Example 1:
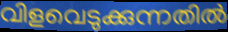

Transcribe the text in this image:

വിളവെടുക്കുന്നതിൽ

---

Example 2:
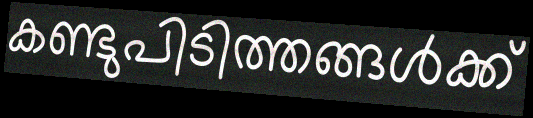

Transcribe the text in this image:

കണ്ടുപിടിത്തങ്ങൾക്ക്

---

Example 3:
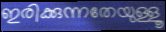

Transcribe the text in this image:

ഇരിക്കുന്നതേയുള്ളൂ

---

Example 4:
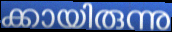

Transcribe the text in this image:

ക്കായിരുന്നു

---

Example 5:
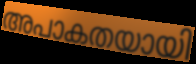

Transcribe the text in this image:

അപാകതയായി